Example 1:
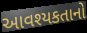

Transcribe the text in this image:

આવશ્યકતાનો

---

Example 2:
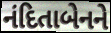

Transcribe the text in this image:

નંદિતાબેનને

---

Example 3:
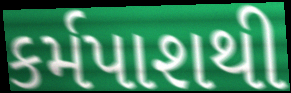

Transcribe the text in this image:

કર્મપાશથી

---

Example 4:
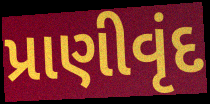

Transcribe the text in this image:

પ્રાણીવૃંદ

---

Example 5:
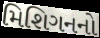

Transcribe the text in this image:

મિશિગનનો